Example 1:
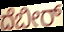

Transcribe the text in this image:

ದೆಬೀರ್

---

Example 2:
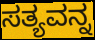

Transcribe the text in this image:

ಸತ್ಯವನ್ನ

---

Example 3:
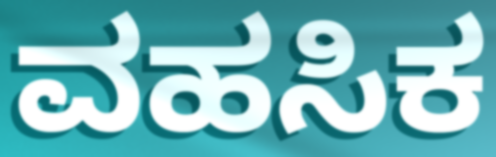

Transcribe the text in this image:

ವಹಸಿಕ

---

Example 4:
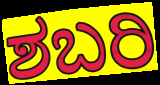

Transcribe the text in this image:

ಶಬರಿ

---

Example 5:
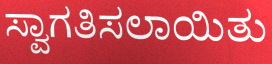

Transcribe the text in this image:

ಸ್ವಾಗತಿಸಲಾಯಿತು